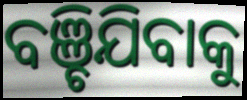
ବଞ୍ଚିଯିବାକୁ